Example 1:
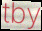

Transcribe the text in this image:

tby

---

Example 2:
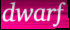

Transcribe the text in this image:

dwarf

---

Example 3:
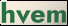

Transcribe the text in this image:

hvem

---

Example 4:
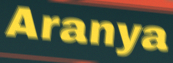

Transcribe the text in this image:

Aranya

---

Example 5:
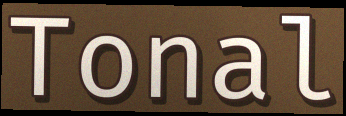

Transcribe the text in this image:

Tonal